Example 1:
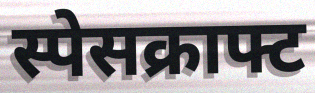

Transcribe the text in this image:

स्पेसक्राफ्ट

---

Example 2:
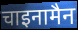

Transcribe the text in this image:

चाइनामैन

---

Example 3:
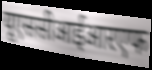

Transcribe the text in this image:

यूएससीआईआरएफ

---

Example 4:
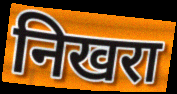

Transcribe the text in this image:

निखरा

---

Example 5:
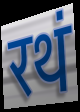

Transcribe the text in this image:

रथं